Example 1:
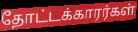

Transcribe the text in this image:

தோட்டக்காரர்கள்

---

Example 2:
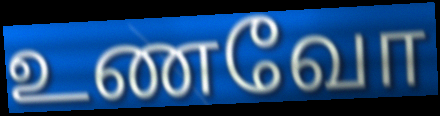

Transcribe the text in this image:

உணவோ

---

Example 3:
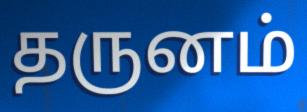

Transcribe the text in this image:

தருனம்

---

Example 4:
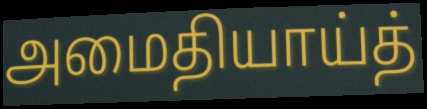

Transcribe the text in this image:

அமைதியாய்த்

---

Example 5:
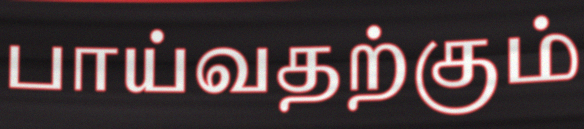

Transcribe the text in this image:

பாய்வதற்கும்